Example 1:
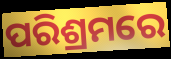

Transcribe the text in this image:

ପରିଶ୍ରମରେ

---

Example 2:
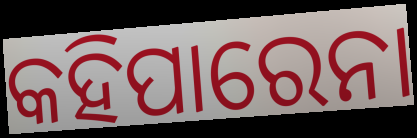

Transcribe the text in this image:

କହିପାରେନା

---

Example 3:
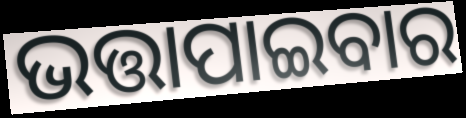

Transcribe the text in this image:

ଭତ୍ତାପାଇବାର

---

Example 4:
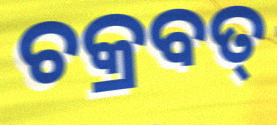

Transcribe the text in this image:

ଚକ୍ରବତ୍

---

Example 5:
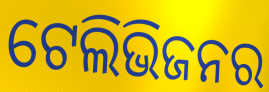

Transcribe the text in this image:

ଟେଲିଭିଜନର